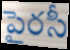
పైరసీ